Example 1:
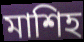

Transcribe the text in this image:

মাশিহ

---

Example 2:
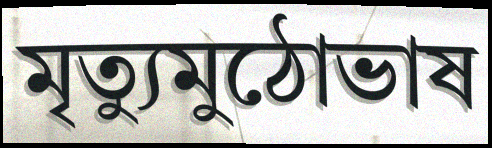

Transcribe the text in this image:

মৃত্যুমুঠোভাষ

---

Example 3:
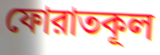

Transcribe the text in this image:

ফোরাতকূল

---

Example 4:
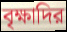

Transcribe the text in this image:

বৃক্ষাদির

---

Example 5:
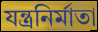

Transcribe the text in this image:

যন্ত্রনির্মাতা